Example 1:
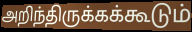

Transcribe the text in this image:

அறிந்திருக்கக்கூடும்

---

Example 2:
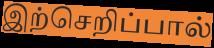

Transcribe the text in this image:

இற்செறிப்பால்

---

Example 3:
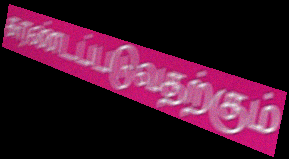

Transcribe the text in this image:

சுரண்டப்படுவதற்கும்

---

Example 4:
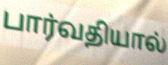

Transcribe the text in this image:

பார்வதியால்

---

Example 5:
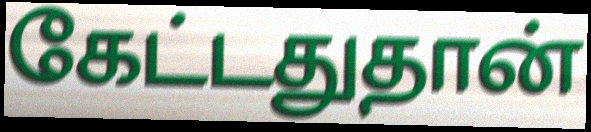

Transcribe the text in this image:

கேட்டதுதான்